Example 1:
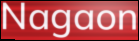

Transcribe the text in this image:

Nagaon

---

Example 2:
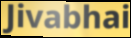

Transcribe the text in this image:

Jivabhai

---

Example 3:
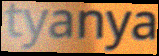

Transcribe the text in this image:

tyanya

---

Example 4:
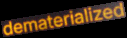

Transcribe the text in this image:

dematerialized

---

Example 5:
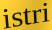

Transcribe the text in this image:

istri